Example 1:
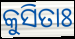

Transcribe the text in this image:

କୁସିତାଃ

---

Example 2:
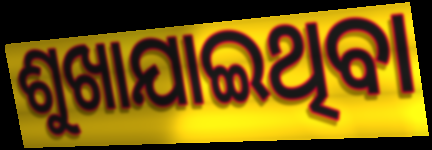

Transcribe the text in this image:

ଶୁଖାଯାଇଥିବା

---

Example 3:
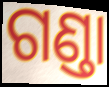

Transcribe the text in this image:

ଗଣ୍ଡା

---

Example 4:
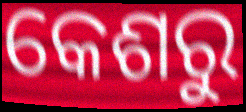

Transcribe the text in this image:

କେଶରୁ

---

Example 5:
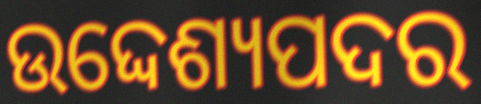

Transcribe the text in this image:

ଉଦ୍ଦେଶ୍ୟପଦର